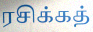
ரசிக்கத்